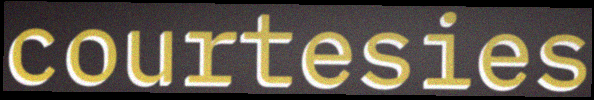
courtesies